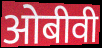
ओबीवी